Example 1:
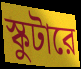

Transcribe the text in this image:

স্কুটারে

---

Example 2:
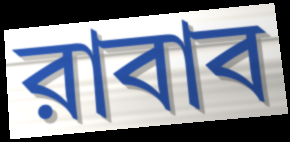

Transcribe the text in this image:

রাবাব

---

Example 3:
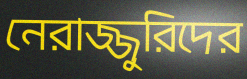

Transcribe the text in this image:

নেরাজ্জুরিদের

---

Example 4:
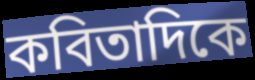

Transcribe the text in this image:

কবিতাদিকে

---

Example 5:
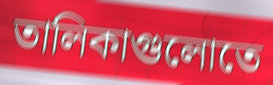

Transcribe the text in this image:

তালিকাগুলোতে